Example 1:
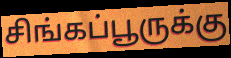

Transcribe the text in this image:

சிங்கப்பூருக்கு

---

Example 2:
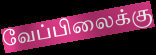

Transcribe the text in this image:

வேப்பிலைக்கு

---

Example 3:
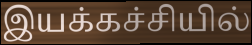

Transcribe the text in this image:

இயக்கச்சியில்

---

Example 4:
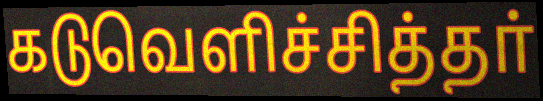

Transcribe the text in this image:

கடுவெளிச்சித்தர்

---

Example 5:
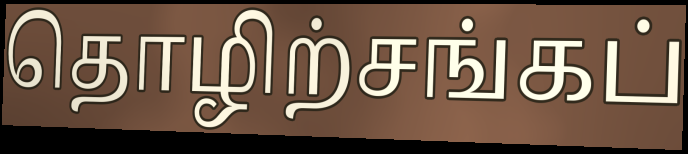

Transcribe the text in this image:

தொழிற்சங்கப்